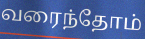
வரைந்தோம்